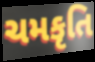
ચમકૃતિ